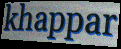
khappar